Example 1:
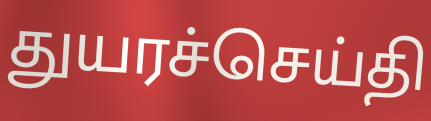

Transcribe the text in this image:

துயரச்செய்தி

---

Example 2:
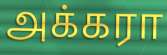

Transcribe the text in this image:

அக்கரா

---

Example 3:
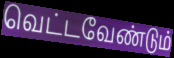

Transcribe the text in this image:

வெட்டவேண்டும்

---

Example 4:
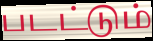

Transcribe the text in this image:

படட்டும்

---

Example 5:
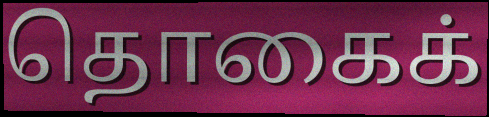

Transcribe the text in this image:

தொகைக்